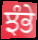
ਝੰਭੇ